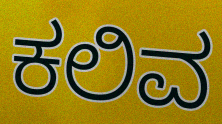
ಕಲಿವ